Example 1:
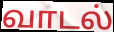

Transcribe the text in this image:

வாடல்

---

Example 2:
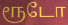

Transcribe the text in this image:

ரூடோ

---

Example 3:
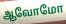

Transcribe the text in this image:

ஆவோமோ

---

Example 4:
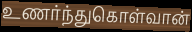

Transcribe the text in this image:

உணர்ந்துகொள்வான்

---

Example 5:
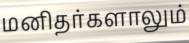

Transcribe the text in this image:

மனிதர்களாலும்